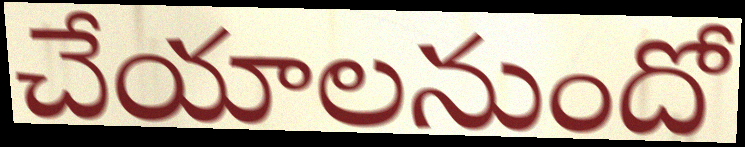
చేయాలనుందో